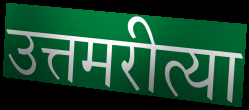
उत्तमरीत्या